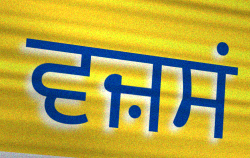
ਵਜ਼ਸਂ